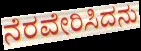
ನೆರವೇರಿಸಿದನು